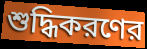
শুদ্ধিকরণের